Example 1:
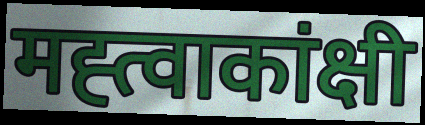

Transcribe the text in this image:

मह्त्वाकांक्षी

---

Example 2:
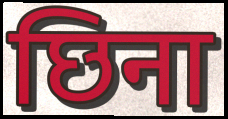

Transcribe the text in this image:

छिना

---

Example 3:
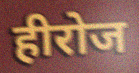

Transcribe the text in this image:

हीरोज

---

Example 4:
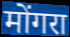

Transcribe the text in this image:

मोंगरा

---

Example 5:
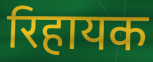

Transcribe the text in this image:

रिहायक